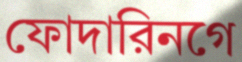
ফোদারিনগে